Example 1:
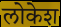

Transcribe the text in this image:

लोकेश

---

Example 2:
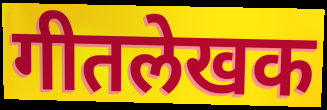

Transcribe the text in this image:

गीतलेखक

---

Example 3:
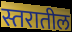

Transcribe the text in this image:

स्तरातील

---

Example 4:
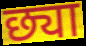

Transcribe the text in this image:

छ्या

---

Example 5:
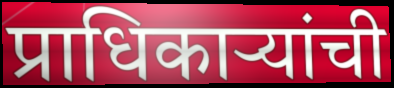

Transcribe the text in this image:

प्राधिकाऱ्यांची